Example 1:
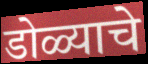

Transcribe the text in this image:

डोळ्याचे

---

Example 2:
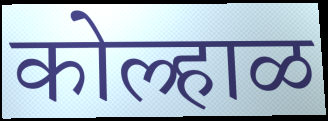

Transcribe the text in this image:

कोल्हाळ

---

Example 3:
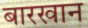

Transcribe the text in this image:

बारखान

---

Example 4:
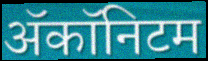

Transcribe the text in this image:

ॲकॉनिटम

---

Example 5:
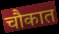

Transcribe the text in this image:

चौकात